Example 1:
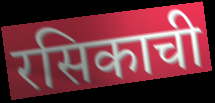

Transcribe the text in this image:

रसिकाची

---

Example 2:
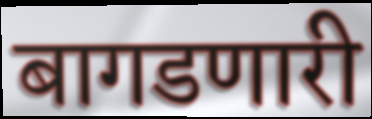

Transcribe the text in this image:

बागडणारी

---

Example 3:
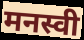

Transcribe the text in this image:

मनस्वी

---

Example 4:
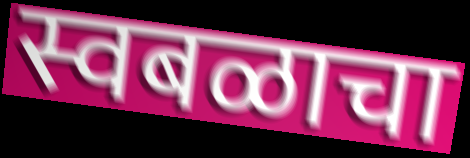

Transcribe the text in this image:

स्वबळाचा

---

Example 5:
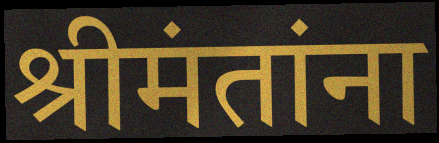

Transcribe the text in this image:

श्रीमंतांना